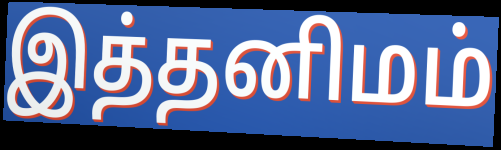
இத்தனிமம்